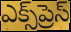
ఎక్స్‌ప్రెస్